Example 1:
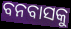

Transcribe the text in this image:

ବନବାସକୁ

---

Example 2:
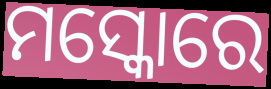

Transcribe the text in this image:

ମସ୍କୋରେ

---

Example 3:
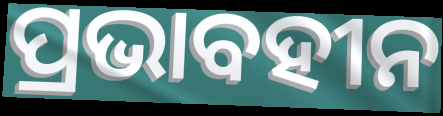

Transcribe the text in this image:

ପ୍ରଭାବହୀନ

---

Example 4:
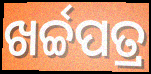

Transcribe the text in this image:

ଖର୍ଚ୍ଚପତ୍ର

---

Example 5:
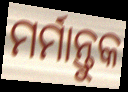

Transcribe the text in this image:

ମର୍ମାନ୍ତୁକ